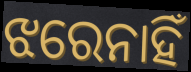
ଝରେନାହିଁ